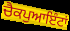
ਚੈਕਪੁਆਇੰਟਾਂ